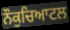
ਨੌਕੁਚਿਆਟਲ